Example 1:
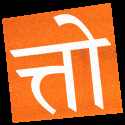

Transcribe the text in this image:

त्तो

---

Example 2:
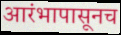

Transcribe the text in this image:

आरंभापासूनच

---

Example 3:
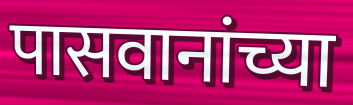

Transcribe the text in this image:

पासवानांच्या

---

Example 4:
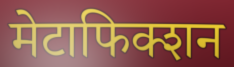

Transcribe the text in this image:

मेटाफिक्शन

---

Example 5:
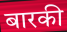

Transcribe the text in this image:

बारकी